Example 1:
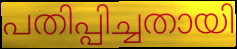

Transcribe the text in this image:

പതിപ്പിച്ചതായി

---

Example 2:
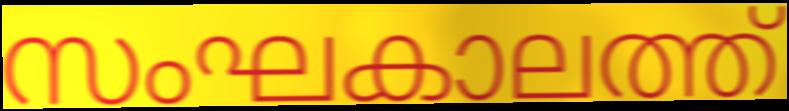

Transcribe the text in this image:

സംഘകാലത്ത്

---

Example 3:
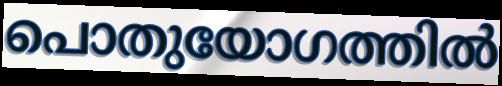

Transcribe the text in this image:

പൊതുയോഗത്തിൽ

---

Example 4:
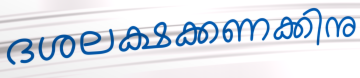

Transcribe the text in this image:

ദശലക്ഷക്കണക്കിനു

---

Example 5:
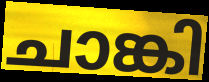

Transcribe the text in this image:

ചാങ്കി